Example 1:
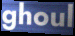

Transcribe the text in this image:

ghoul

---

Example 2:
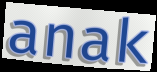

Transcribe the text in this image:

anak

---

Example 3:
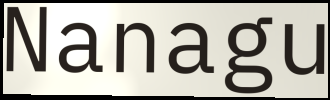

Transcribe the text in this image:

Nanagu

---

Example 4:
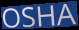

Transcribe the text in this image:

OSHA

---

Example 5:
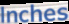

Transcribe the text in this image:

Inches